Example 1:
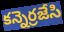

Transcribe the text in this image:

కన్నెర్రజేసి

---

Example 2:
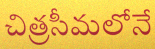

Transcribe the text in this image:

చిత్రసీమలోనే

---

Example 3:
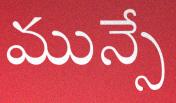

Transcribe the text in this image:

మున్సే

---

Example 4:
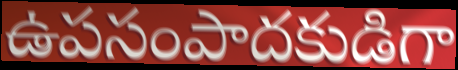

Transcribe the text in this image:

ఉపసంపాదకుడిగా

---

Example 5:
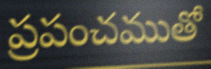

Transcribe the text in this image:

ప్రపంచముతో